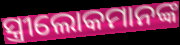
ସ୍ତ୍ରୀଲୋକମାନଙ୍କ